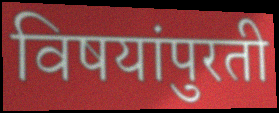
विषयांपुरती